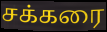
சக்கரை